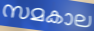
സമകാല